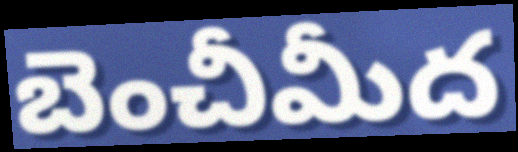
బెంచీమీద